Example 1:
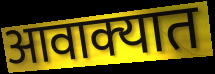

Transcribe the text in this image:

आवाक्‍यात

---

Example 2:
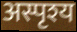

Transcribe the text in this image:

अस्पृश्य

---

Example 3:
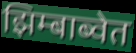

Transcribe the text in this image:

झिम्बाब्वेत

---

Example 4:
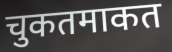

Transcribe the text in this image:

चुकतमाकत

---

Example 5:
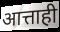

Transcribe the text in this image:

आत्ताही